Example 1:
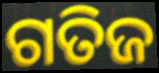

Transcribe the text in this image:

ଗତିଜ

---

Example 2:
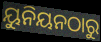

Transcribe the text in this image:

ୟୁନିୟନଠାରୁ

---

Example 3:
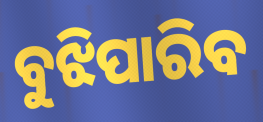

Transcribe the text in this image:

ବୁଝିପାରିବ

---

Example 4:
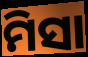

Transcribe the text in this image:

ମିସା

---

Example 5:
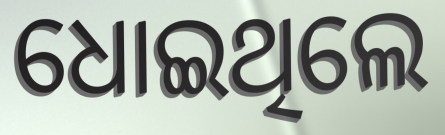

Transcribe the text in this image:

ଧୋଇଥିଲେ